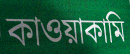
কাওয়াকামি